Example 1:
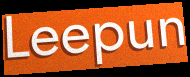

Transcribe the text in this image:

Leepun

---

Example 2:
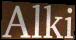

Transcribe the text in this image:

Alki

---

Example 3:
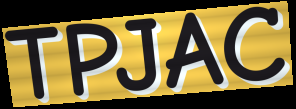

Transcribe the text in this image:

TPJAC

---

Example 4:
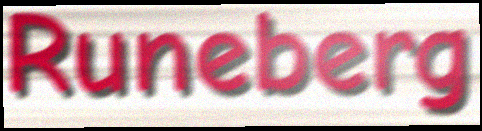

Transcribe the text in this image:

Runeberg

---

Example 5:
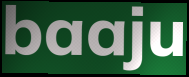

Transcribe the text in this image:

baaju